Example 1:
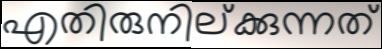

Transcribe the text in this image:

എതിരുനില്ക്കുന്നത്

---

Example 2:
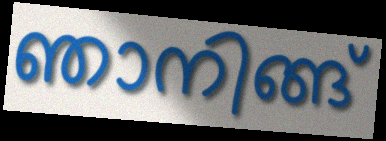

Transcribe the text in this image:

ഞാനിങ്ങ്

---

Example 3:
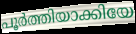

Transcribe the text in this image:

പൂർത്തിയാക്കിയേ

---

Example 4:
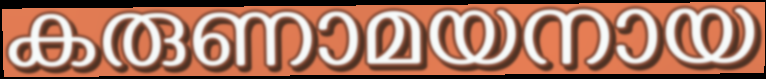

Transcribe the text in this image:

കരുണാമയനായ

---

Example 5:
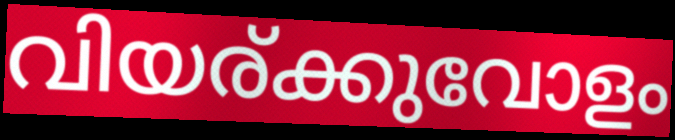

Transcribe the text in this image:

വിയര്ക്കുവോളം